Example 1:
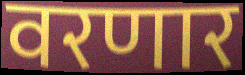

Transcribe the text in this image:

वरणार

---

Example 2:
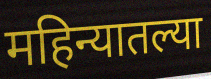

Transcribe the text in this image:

महिन्यातल्या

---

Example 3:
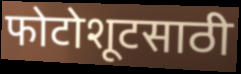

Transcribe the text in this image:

फोटोशूटसाठी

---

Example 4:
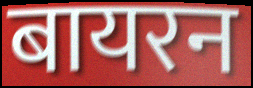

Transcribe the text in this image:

बायरन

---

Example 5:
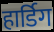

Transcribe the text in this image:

हार्डिग